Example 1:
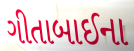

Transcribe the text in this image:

ગીતાબાઈના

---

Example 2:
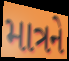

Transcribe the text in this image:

માત્રને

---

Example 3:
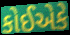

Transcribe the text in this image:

કોઈએકે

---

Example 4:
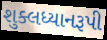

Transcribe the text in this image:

શુક્લધ્યાનરૂપી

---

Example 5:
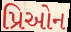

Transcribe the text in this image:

પ્રિઓન